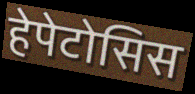
हेपेटोसिस